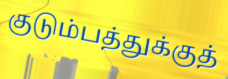
குடும்பத்துக்குத்